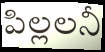
పిల్లలనీ